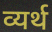
व्यर्थ